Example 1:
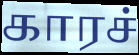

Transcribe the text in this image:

காரச்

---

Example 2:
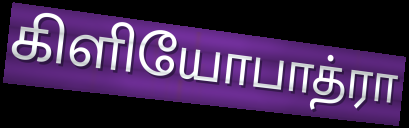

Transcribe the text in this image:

கிளியோபாத்ரா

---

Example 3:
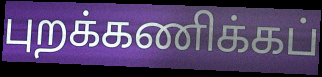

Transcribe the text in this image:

புறக்கணிக்கப்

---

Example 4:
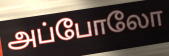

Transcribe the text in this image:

அப்போலோ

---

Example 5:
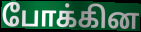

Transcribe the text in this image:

போக்கின